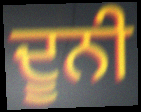
ਦੂਨੀ